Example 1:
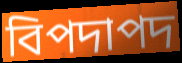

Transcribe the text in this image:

বিপদাপদ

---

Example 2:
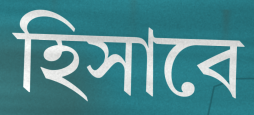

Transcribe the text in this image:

হিসাবে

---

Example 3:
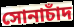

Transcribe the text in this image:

সোনাচাঁদ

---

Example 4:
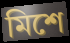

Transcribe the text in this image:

মিশে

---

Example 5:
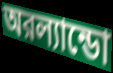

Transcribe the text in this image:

অরল্যান্ডো